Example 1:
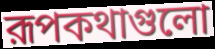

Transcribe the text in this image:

রূপকথাগুলো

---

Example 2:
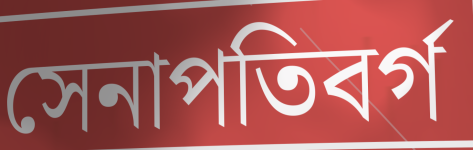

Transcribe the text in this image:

সেনাপতিবর্গ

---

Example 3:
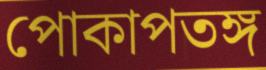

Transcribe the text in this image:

পোকাপতঙ্গ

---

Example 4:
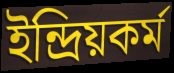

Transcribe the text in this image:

ইন্দ্রিয়কর্ম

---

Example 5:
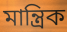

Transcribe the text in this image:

মান্ত্রিক